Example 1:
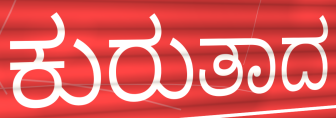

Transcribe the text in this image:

ಕುರುತಾದ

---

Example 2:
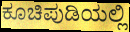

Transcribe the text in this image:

ಕೂಚಿಪುಡಿಯಲ್ಲಿ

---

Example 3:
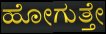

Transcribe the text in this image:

ಹೋಗುತ್ತೇ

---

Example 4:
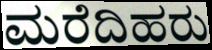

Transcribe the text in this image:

ಮರೆದಿಹರು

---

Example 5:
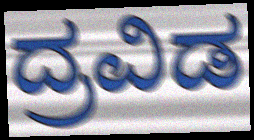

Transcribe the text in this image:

ದ್ರವಿಡ